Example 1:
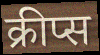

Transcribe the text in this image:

क्रीप्स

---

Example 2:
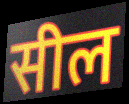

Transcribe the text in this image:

सील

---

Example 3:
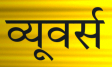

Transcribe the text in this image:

व्यूवर्स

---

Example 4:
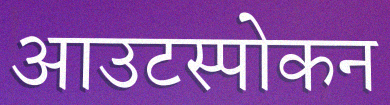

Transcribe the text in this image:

आउटस्पोकन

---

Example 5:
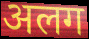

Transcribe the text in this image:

अलग